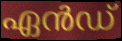
ഏൻഡ്